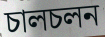
চালচলন